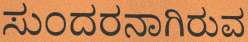
ಸುಂದರನಾಗಿರುವ